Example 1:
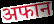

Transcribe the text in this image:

अफान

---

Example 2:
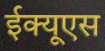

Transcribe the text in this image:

ईक्यूएस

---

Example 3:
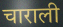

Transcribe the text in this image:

चाराली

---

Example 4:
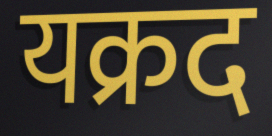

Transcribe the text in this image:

यक्रद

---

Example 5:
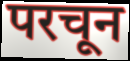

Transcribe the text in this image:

परचून